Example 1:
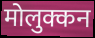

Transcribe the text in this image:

मोलुक्कन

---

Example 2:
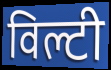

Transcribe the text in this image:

विल्टी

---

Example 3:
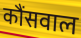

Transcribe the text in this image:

कौंसवाल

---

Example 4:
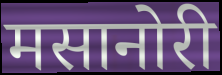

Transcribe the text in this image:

मसानोरी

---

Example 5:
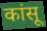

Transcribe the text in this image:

कांसू